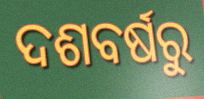
ଦଶବର୍ଷରୁ